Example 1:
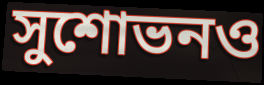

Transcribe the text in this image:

সুশোভনও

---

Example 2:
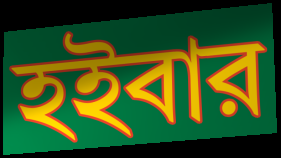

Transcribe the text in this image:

হইবার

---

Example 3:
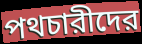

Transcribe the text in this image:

পথচারীদের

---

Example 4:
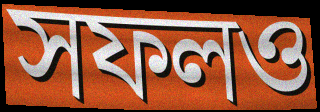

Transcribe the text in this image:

সফলও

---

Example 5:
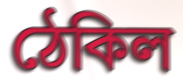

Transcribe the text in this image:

ঠেকিল